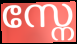
സ്നേ